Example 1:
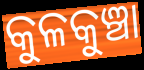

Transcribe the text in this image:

କୁଳକୁଞ୍ଚା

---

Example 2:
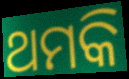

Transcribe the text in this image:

ଥମକି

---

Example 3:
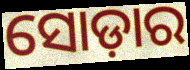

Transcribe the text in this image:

ସୋଡ଼ାର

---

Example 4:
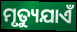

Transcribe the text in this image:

ମୃତ୍ୟୁଯାଏଁ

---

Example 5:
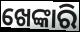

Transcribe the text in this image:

ଖେଙ୍କାରି